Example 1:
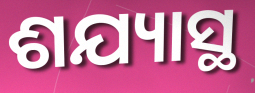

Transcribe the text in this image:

ଶଯ୍ୟାସ୍ଥ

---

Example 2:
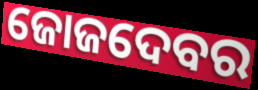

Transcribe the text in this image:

ଜୋଜଦେବର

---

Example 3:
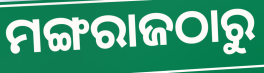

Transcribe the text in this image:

ମଙ୍ଗରାଜଠାରୁ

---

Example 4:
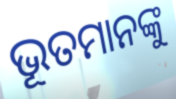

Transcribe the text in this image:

ଭୂତମାନଙ୍କୁ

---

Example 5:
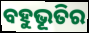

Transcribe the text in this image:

ବହୁଭୂତିର